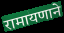
रामायणाने